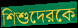
শিশুদেরকে